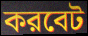
করবেট